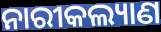
ନାରୀକଲ୍ୟାଣ